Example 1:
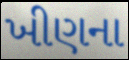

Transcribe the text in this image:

ખીણના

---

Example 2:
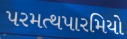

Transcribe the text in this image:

પરમત્થપારમિયો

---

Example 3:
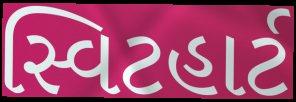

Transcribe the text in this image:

સ્વિટહાર્ટ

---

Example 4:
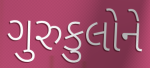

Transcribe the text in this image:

ગુરુકુલોને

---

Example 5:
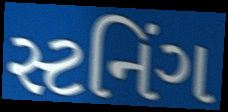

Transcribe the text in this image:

સ્ટનિંગ